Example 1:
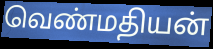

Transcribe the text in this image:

வெண்மதியன்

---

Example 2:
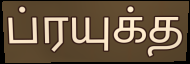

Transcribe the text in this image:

ப்ரயுக்த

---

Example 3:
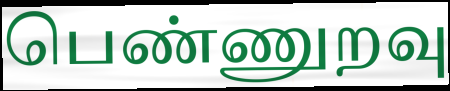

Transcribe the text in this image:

பெண்ணுறவு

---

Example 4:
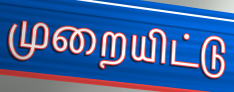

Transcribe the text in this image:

முறையிட்டு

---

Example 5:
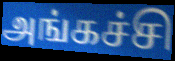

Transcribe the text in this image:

அங்கச்சி